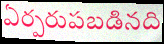
ఏర్పరుపబడినది